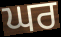
ਘਰ